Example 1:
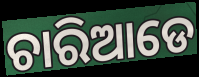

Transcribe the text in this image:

ଚାରିଆଡେ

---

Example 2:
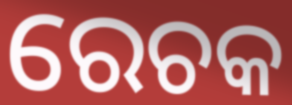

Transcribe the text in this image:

ରେଚକ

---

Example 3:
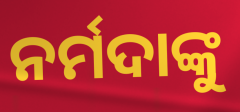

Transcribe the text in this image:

ନର୍ମଦାଙ୍କୁ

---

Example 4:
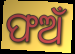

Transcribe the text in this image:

ଫଅଁ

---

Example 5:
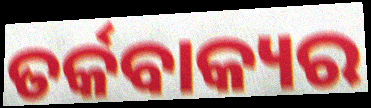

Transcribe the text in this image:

ତର୍କବାକ୍ୟର